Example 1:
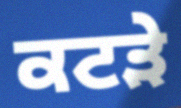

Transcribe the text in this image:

ਕਟੜੇ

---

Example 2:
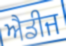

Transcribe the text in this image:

ਐਡੀਜ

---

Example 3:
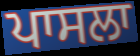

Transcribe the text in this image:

ਪਾਸਲਾ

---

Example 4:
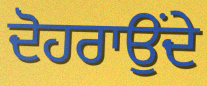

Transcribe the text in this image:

ਦੋਹਰਾਉਂਦੇ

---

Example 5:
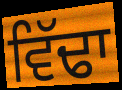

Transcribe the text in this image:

ਵਿੱਢਾ